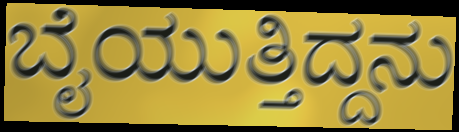
ಬೈಯುತ್ತಿದ್ದನು